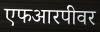
एफआरपीवर